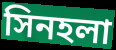
সিনহলা